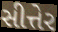
સીત્તેર